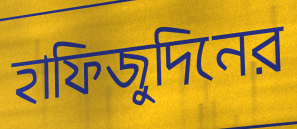
হাফিজুদিনের